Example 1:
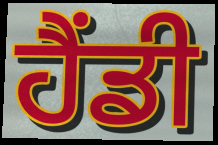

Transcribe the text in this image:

ਹੈਂਡੀ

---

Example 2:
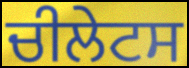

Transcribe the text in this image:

ਚੀਲੇਟਸ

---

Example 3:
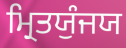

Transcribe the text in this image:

ਮ੍ਰਿਤਯੁੰਜਯ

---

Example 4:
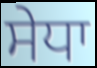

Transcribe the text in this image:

ਸੇਧਾ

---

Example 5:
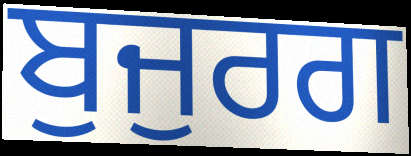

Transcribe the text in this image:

ਬੁਜੁਰਗ